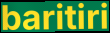
baritiri